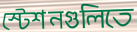
স্টেশনগুলিতে